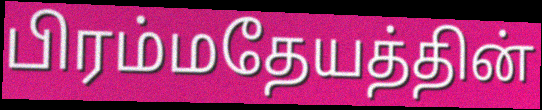
பிரம்மதேயத்தின்